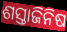
ଶସ୍ତାଜିନିଷ